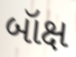
બૉક્ષ